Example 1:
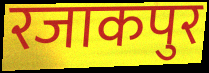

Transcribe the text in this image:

रजाकपुर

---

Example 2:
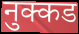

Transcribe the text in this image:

नुक्कड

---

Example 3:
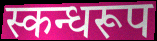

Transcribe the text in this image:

स्कन्धरूप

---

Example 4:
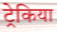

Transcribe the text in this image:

ट्रेकिया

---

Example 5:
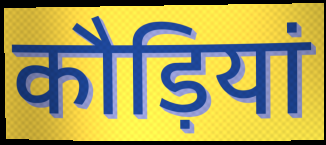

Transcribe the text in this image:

कौड़ियां